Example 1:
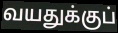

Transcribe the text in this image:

வயதுக்குப்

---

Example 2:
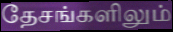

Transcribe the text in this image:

தேசங்களிலும்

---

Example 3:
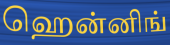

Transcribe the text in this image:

ஹென்னிங்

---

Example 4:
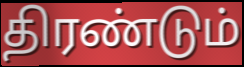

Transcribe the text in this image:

திரண்டும்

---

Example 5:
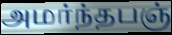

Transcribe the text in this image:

அமர்ந்தபஞ்